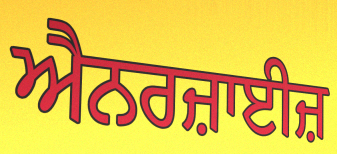
ਐਨਰਜ਼ਾਈਜ਼